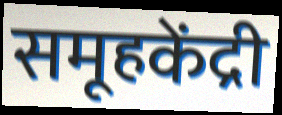
समूहकेंद्री